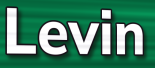
Levin